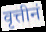
वृत्तीनं